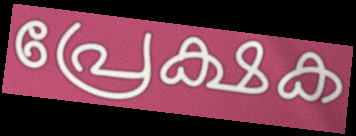
പ്രേക്ഷക